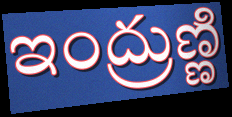
ఇంద్రుణ్ణి